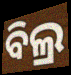
ବିଲ୍ର